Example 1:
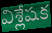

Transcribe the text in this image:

విశ్లేషక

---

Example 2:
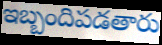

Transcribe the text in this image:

ఇబ్బందిపడతారు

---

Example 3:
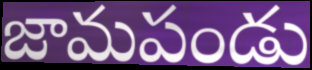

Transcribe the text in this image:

జామపండు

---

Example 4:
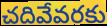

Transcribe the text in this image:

చదివేవరకు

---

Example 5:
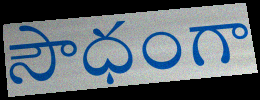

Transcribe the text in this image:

సౌధంగా